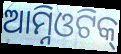
ଆମ୍ନିଓଟିକ୍